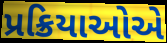
પ્રક્રિયાઓએ